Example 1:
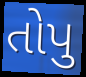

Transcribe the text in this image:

તોપુ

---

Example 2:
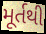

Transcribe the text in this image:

મૂર્તથી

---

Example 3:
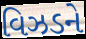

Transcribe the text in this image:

વિઝડને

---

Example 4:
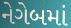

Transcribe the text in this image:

નેગેબમાં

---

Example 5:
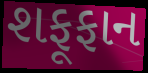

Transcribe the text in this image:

શફૂફાન